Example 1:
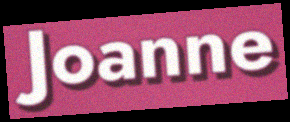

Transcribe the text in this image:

Joanne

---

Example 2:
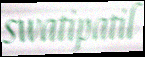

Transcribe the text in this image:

swatipatil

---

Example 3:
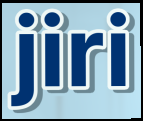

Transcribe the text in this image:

jiri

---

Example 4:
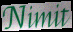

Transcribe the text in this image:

Nimit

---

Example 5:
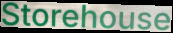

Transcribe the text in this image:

Storehouse